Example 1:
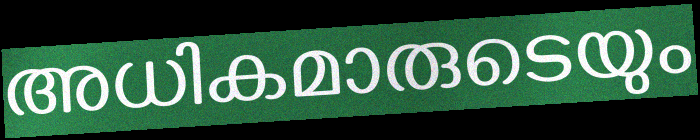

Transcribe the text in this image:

അധികമാരുടെയും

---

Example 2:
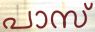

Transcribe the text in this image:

പാസ്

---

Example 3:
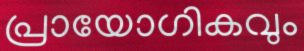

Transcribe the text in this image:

പ്രായോഗികവും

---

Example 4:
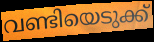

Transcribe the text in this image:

വണ്ടിയെടുക്ക്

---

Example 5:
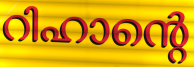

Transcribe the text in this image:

റിഹാന്റെ